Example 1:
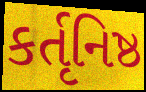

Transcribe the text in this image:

કર્તૃનિષ્ઠ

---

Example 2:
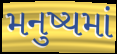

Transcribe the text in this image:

મનુષ્યમાં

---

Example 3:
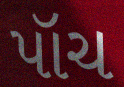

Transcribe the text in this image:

પૉચ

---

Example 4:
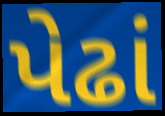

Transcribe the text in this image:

પેઢાં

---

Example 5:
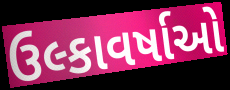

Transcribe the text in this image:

ઉલ્કાવર્ષાઓ